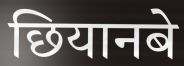
छियानबे